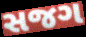
સજગ